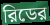
রিডের